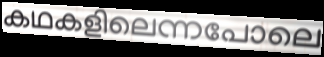
കഥകളിലെന്നപോലെ